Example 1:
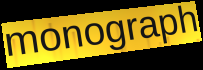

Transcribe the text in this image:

monograph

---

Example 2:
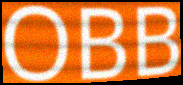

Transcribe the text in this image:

OBB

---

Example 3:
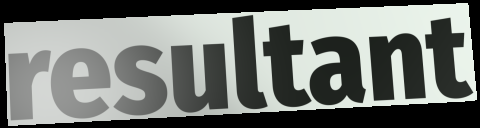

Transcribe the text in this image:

resultant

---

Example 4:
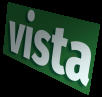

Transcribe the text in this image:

vista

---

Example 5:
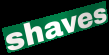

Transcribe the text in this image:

shaves